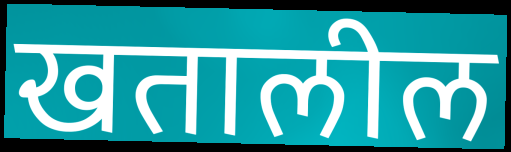
खतालील